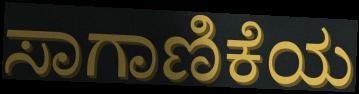
ಸಾಗಾಣಿಕೆಯ